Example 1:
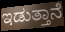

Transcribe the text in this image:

ಇಡುತ್ತಾನೆ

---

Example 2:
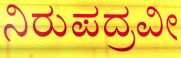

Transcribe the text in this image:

ನಿರುಪದ್ರವೀ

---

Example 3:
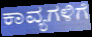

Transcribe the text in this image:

ಕಾವ್ಯಗಳಿಗೆ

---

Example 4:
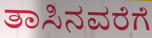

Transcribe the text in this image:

ತಾಸಿನವರೆಗೆ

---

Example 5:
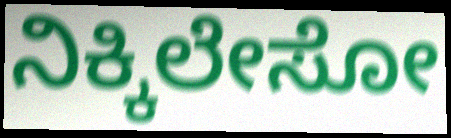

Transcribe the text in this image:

ನಿಕ್ಕಿಲೇಸೋ